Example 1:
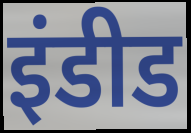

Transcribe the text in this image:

इंडीड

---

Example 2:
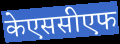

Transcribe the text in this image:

केएससीएफ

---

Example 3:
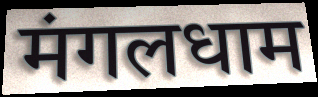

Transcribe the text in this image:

मंगलधाम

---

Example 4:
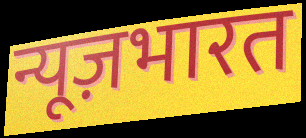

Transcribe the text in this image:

न्यूज़भारत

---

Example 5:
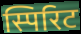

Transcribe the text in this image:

स्पिरिट